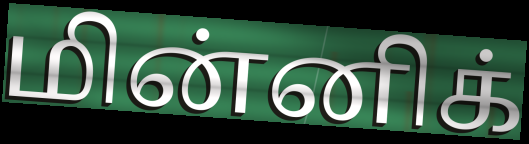
மின்னிக்